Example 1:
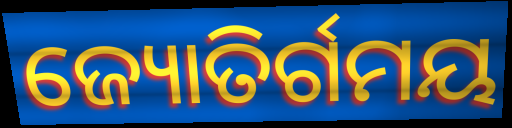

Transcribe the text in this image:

ଜ୍ୟୋତିର୍ଗମୟ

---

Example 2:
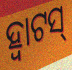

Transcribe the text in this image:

ହ୍ୱାଟସ୍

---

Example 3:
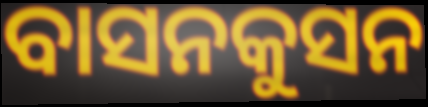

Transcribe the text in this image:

ବାସନକୁସନ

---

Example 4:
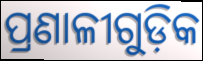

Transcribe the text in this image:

ପ୍ରଣାଳୀଗୁଡ଼ିକ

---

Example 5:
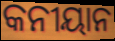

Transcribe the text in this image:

କନୀୟାନ